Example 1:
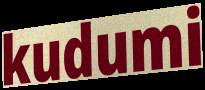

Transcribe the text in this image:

kudumi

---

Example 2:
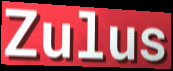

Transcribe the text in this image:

Zulus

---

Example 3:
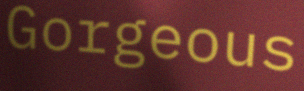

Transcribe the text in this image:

Gorgeous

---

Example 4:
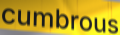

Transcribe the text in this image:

cumbrous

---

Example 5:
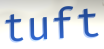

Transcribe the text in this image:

tuft